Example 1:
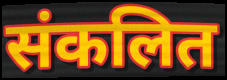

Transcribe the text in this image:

संकलित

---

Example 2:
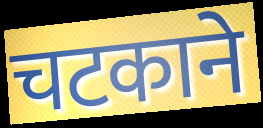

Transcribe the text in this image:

चटकाने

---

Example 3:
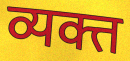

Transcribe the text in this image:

व्यक्त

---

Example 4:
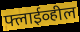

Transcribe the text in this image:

फ्लाईव्हील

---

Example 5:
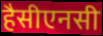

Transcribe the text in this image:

हैसीएनसी